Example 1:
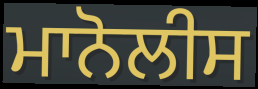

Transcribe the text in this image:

ਮਾਨੋਲੀਸ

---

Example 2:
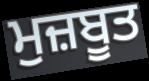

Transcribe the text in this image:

ਮੁਜ਼ਬੂਤ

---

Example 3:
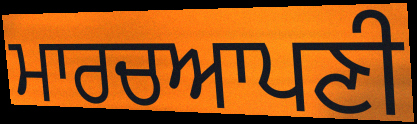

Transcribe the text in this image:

ਮਾਰਚਆਪਣੀ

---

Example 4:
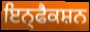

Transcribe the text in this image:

ਇਨ੍ਫੈਕਸ਼ਨ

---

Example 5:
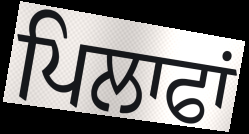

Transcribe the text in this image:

ਪਿਲਾਫਾਂ